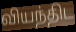
வியந்திட